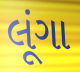
લૂંગા